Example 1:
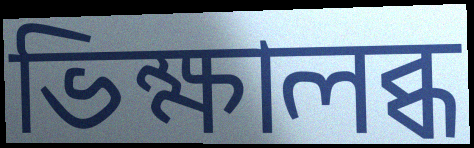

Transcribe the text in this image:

ভিক্ষালব্ধ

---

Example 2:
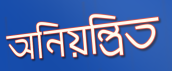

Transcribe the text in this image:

অনিয়ন্ত্রিত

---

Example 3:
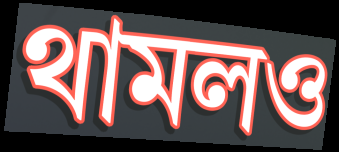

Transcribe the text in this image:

থামলও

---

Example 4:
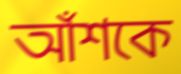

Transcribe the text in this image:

আঁশকে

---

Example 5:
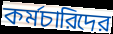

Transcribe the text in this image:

কর্মচারিদের